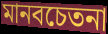
মানবচেতনা